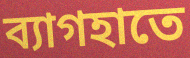
ব্যাগহাতে